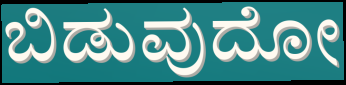
ಬಿಡುವುದೋ